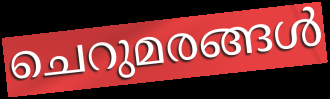
ചെറുമരങ്ങൾ